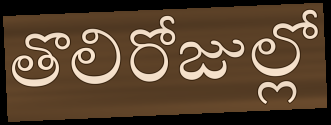
తొలిరోజుల్లో